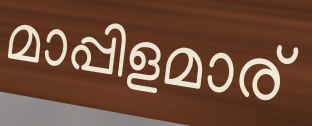
മാപ്പിളമാര്